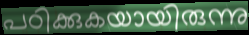
പഠിക്കുകയായിരുന്നു